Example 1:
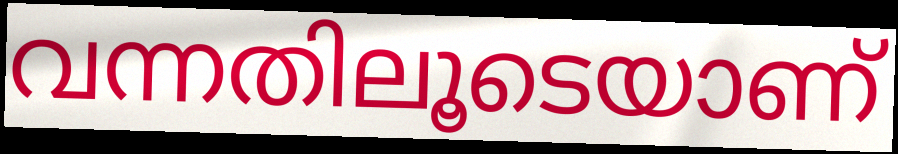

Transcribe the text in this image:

വന്നതിലൂടെയാണ്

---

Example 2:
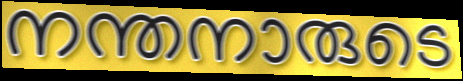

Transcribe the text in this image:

നന്തനാരുടെ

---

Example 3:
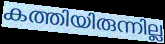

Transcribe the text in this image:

കത്തിയിരുന്നില്ല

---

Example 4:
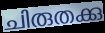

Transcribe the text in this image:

ചിരുതക്കു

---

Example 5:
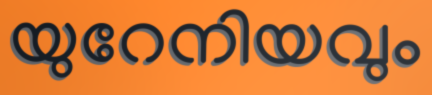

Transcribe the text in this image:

യുറേനിയവും